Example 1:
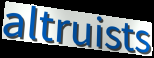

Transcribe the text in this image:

altruists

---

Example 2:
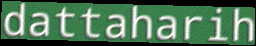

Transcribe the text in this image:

dattaharih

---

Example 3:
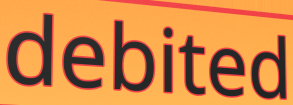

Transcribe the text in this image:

debited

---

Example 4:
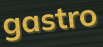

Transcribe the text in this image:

gastro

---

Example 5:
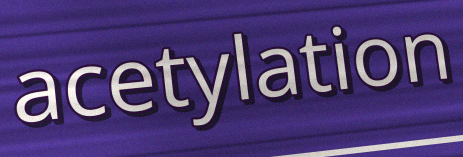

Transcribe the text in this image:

acetylation